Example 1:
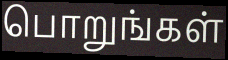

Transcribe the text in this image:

பொறுங்கள்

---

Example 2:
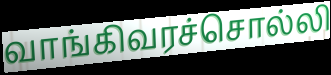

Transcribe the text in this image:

வாங்கிவரச்சொல்லி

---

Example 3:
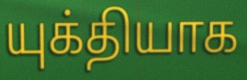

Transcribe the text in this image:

யுக்தியாக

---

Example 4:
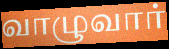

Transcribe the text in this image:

வாழுவார்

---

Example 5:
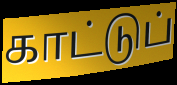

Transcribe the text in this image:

காட்டுப்